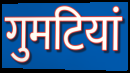
गुमटियां